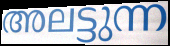
അലട്ടുന്ന